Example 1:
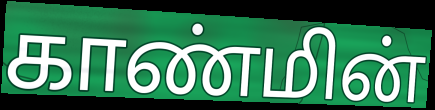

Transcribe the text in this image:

காண்மின்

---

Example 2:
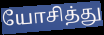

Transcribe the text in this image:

யோசித்து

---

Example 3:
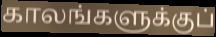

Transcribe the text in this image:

காலங்களுக்குப்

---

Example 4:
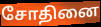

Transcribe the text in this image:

சோதினை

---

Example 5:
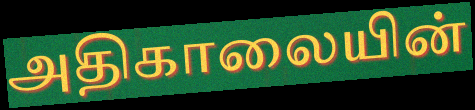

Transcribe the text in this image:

அதிகாலையின்